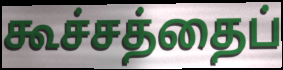
கூச்சத்தைப்